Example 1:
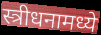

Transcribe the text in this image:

स्त्रीधनामध्ये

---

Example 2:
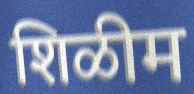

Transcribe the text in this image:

शिळीम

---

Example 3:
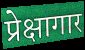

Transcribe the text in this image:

प्रेक्षागार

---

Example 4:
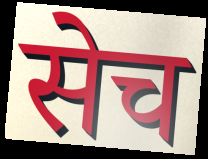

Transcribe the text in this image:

सेच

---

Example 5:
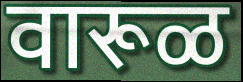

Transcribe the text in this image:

वारूळ